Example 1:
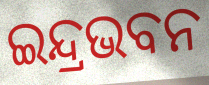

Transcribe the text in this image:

ଇନ୍ଦ୍ରଭବନ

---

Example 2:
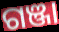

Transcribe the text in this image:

ଗଞ୍ଜା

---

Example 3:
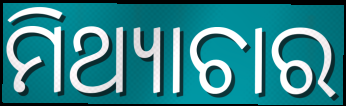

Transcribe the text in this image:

ମିଥ୍ୟାଚାର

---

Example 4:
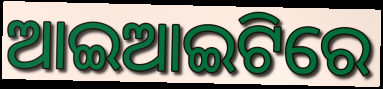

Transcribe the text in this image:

ଆଇଆଇଟିରେ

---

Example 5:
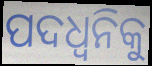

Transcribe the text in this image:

ପଦଧ୍ୱନିକୁ